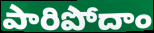
పారిపోదాం